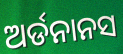
ଅର୍ଡନାନସ